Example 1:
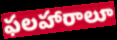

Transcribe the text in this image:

ఫలహారాలూ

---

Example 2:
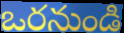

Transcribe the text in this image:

ఒరనుండి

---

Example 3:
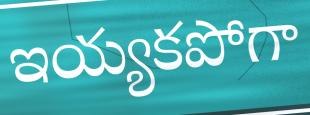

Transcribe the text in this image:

ఇయ్యకపోగా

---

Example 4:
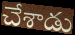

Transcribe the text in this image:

చేశాడు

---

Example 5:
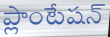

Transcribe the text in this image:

ప్లాంటేషన్